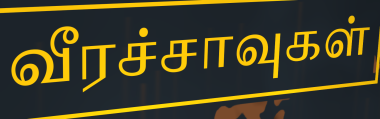
வீரச்சாவுகள்